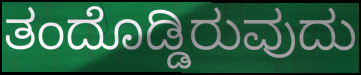
ತಂದೊಡ್ಡಿರುವುದು